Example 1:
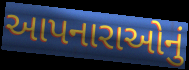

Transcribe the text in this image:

આપનારાઓનું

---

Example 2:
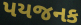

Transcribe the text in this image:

પયજનક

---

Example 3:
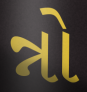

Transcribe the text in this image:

ન્નો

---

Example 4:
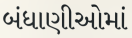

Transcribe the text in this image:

બંધાણીઓમાં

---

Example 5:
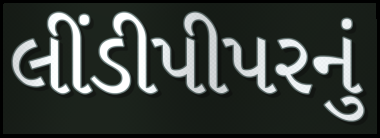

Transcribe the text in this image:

લીંડીપીપરનું